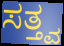
ಸತ್ತ್ವ